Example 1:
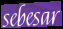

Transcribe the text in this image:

sebesar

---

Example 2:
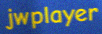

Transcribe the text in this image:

jwplayer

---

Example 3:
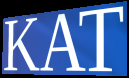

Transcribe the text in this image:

KAT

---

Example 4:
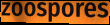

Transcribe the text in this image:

zoospores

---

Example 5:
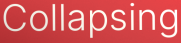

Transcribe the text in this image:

Collapsing